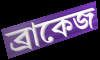
ব্রাকেজ